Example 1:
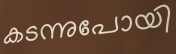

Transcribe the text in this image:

കടന്നുപോയി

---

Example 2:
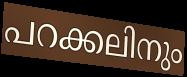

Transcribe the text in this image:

പറക്കലിനും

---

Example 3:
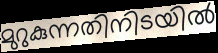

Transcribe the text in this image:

മുറുകുന്നതിനിടയിൽ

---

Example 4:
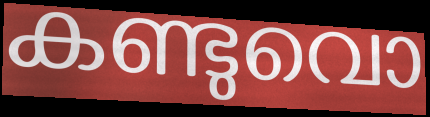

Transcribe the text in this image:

കണ്ടുവൊ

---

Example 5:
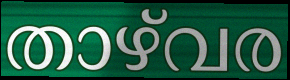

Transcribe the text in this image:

താഴ്‌വര